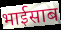
भाईसाब